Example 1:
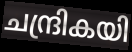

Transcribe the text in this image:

ചന്ദ്രികയി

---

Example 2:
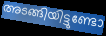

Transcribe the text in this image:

അടങ്ങിയിട്ടുണ്ടോ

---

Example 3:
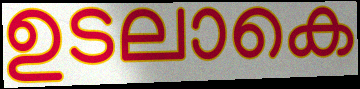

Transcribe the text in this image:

ഉടലാകെ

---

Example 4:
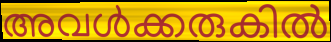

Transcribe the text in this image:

അവൾക്കരുകിൽ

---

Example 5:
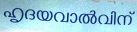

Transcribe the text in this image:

ഹൃദയവാൽവിന്